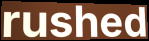
rushed